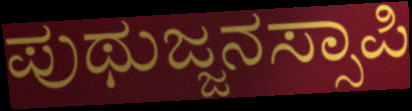
ಪುಥುಜ್ಜನಸ್ಸಾಪಿ